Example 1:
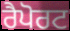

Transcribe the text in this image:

ਰੈਪੋਰਟ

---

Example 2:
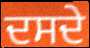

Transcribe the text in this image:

ਦਸਦੇ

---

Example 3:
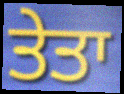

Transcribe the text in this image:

ਤੇਤਾ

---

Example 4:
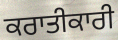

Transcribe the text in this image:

ਕਰਾਤੀਕਾਰੀ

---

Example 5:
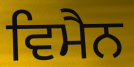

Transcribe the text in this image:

ਵਿਮੈਨ